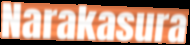
Narakasura